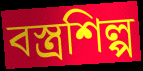
বস্ত্ৰশিল্প